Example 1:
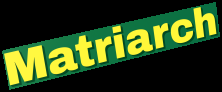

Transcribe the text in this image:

Matriarch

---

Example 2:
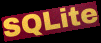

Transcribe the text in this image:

SQLite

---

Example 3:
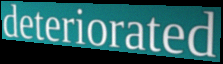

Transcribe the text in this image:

deteriorated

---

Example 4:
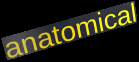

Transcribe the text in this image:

anatomical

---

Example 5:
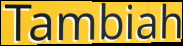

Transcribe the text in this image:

Tambiah